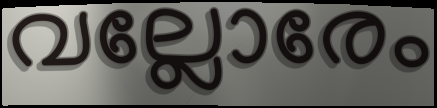
വല്ലോരേം